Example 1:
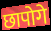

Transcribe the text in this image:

छापोगे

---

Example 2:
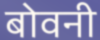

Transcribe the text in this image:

बोवनी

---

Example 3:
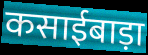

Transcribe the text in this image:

कसाईबाड़ा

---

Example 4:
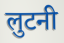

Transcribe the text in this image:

लुटनी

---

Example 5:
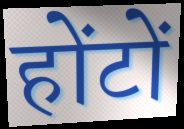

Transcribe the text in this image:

होंटों